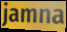
jamna